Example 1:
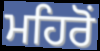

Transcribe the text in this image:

ਮਹਿਰੋਂ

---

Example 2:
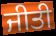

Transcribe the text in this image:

ਜੀਤੀ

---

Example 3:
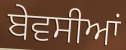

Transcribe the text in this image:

ਬੇਵਸੀਆਂ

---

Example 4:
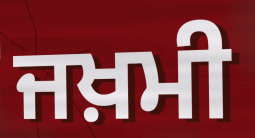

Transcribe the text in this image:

ਜਖ਼ਮੀ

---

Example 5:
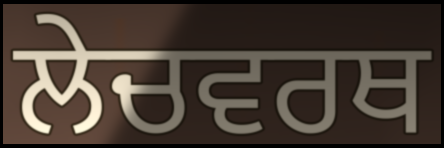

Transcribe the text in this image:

ਲੇਚਵਰਥ